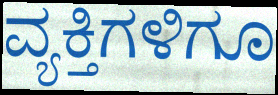
ವ್ಯಕ್ತಿಗಳಿಗೂ